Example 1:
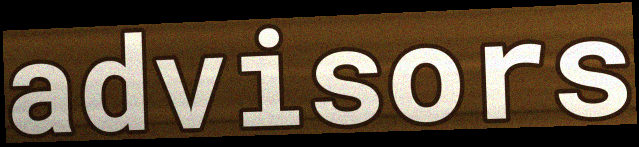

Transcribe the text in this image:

advisors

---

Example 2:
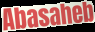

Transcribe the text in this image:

Abasaheb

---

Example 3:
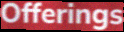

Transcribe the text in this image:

Offerings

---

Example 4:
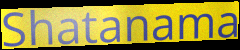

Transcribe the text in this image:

Shatanama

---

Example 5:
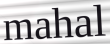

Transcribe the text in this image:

mahal